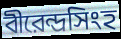
বীরেন্দ্রসিংহ